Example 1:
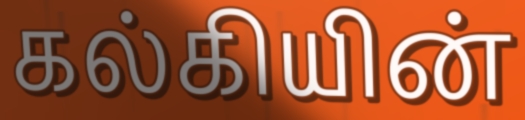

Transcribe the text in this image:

கல்கியின்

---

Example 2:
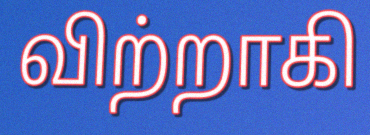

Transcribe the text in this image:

விற்றாகி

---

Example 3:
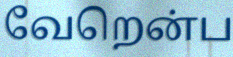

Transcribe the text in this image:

வேறென்ப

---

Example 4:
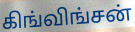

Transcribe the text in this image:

கிங்விங்சன்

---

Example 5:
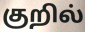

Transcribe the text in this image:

குறில்